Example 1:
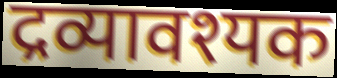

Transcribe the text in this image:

द्रव्यावश्यक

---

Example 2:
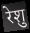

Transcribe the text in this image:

रेशु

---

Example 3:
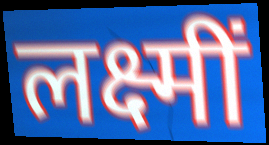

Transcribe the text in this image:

लक्ष्मीं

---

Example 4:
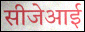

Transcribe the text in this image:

सीजेआई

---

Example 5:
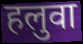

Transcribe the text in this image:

हलुवा